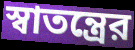
স্বাতন্ত্রের